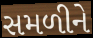
સમળીને